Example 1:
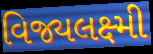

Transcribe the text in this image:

વિજ્યલક્ષ્મી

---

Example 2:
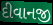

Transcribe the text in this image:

દીવાનજી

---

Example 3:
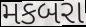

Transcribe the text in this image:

મકબરા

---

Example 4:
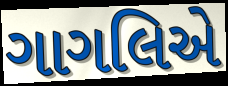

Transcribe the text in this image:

ગાગલિએ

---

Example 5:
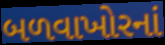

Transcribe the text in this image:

બળવાખોરનાં